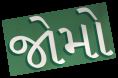
જોમો